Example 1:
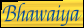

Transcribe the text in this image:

Bhawaiya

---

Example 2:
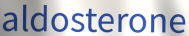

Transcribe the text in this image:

aldosterone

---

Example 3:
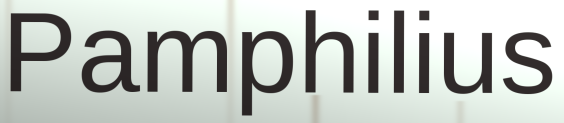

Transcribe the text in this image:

Pamphilius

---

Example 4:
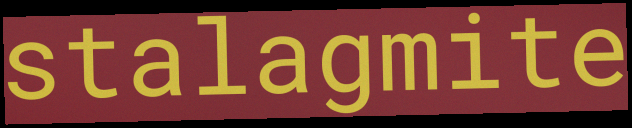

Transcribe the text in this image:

stalagmite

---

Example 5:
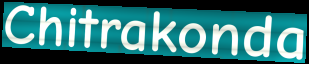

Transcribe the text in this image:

Chitrakonda